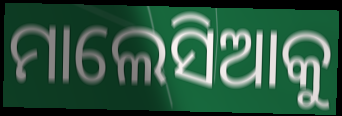
ମାଲେସିଆକୁ